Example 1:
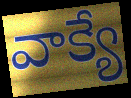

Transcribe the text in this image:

వాక్యే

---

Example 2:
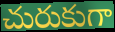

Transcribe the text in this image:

చురుకుగా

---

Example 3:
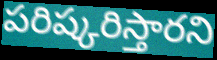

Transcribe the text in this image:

పరిష్కరిస్తారని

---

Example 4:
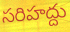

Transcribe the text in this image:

సరిహద్దు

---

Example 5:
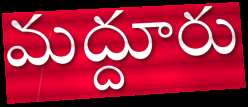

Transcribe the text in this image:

మద్దూరు